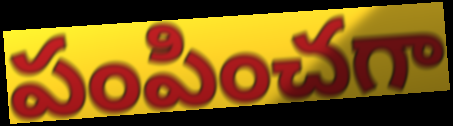
పంపించగా